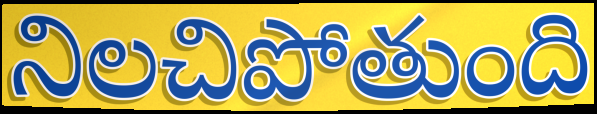
నిలచిపోతుంది